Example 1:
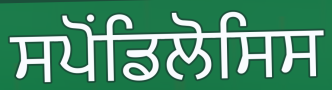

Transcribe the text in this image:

ਸਪੋਂਡਿਲੋਸਿਸ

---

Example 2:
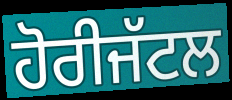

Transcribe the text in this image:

ਹੋਰੀਜੱਟਲ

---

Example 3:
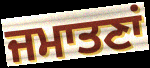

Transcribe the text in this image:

ਜਮਾਤਣਾਂ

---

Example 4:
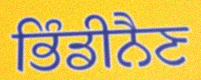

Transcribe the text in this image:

ਭਿੰਡੀਨੈਣ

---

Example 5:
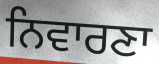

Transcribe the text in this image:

ਨਿਵਾਰਣਾ